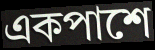
একপাশে